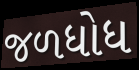
જળધોધ